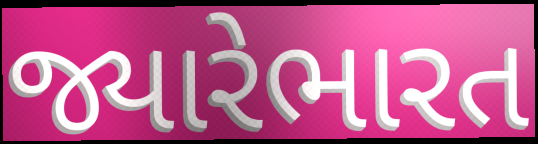
જ્યારેભારત